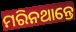
ମରିନଥାନ୍ତେ